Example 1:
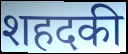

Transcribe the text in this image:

शहदकी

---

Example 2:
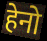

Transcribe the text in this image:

हेनो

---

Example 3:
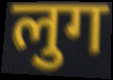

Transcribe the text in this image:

लुग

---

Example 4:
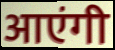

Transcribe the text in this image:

आएंगी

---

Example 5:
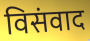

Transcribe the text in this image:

विसंवाद